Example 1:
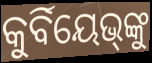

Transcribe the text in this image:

କୁର୍ବିୟେଭ୍‌ଙ୍କୁ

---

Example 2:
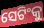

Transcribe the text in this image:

ସେଟିଂକୁ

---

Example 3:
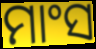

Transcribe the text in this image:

ମାଂସ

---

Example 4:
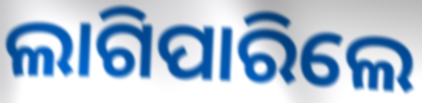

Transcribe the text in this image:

ଲାଗିପାରିଲେ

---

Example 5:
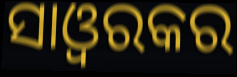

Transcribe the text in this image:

ସାଓ୍ୱରକର